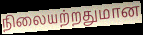
நிலையற்றதுமான